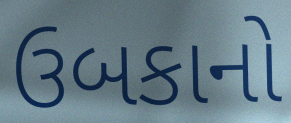
ઉબકાનો